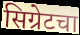
सिग्रेटचा